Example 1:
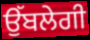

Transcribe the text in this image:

ਉੱਬਲੇਗੀ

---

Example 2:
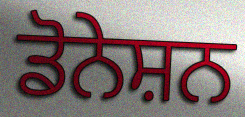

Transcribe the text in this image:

ਡੋਨੇਸ਼ਨ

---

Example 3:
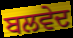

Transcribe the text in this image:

ਬਲਵੇਦ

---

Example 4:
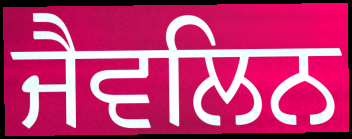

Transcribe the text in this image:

ਜੈਵਲਿਨ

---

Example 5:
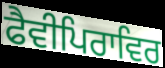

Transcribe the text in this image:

ਫੈਵੀਪਿਰਾਵਿਰ